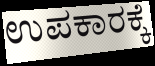
ಉಪಕಾರಕ್ಕೆ